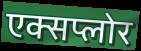
एक्सप्लोर